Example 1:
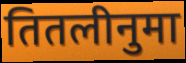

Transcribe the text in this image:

तितलीनुमा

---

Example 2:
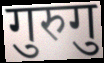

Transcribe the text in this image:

गुरुगु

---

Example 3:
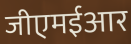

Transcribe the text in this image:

जीएमईआर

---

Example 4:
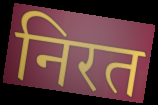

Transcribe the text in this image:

निरत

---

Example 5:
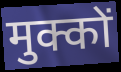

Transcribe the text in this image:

मुक्कों